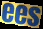
ees